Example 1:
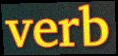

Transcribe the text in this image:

verb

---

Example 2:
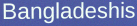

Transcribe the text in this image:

Bangladeshis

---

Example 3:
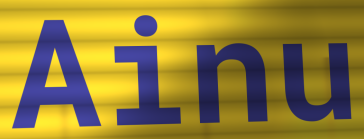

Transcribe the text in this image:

Ainu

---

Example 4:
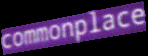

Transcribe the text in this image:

commonplace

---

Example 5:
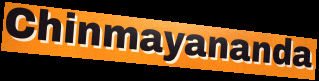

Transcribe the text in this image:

Chinmayananda